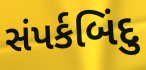
સંપર્કબિંદુ